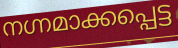
നഗ്നമാക്കപ്പെട്ട